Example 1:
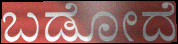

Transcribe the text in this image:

ಬಡೋದೆ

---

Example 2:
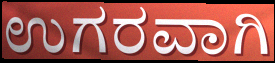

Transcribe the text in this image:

ಉಗರವಾಗಿ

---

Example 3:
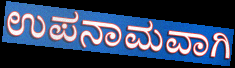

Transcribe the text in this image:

ಉಪನಾಮವಾಗಿ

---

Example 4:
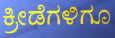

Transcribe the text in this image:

ಕ್ರೀಡೆಗಳಿಗೂ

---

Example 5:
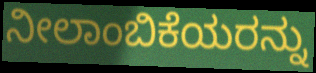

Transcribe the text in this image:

ನೀಲಾಂಬಿಕೆಯರನ್ನು